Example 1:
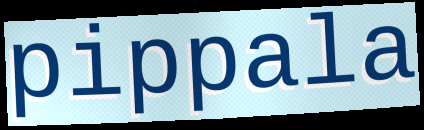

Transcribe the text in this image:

pippala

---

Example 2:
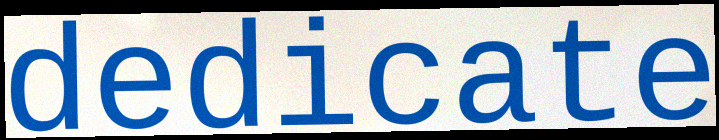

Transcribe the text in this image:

dedicate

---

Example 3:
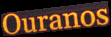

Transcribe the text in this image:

Ouranos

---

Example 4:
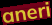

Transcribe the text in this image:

aneri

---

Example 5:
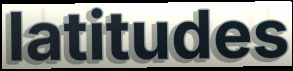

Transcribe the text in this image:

latitudes